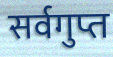
सर्वगुप्त